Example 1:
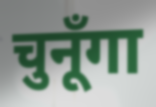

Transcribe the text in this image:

चुनूँगा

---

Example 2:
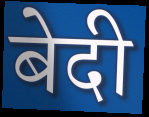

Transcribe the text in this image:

बेदी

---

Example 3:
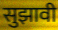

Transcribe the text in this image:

सुझावी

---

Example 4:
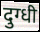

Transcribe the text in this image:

दुग्धी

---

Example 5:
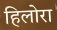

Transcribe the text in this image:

हिलोरा